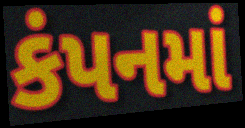
કંપનમાં